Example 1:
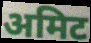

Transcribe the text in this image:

अमिट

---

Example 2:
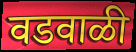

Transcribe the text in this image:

वडवाळी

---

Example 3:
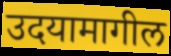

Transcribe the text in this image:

उदयामागील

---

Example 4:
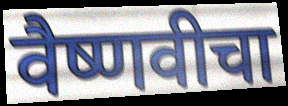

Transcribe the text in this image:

वैष्णवीचा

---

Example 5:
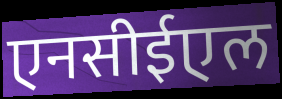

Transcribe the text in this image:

एनसीईएल